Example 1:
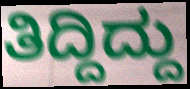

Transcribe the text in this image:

ತಿದ್ದಿದ್ದು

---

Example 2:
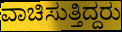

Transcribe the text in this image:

ವಾಚಿಸುತ್ತಿದ್ದರು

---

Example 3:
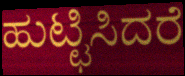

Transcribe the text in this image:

ಹುಟ್ಟಿಸಿದರೆ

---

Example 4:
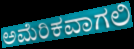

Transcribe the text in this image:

ಅಮೆರಿಕವಾಗಲಿ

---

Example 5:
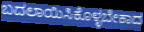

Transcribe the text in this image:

ಬದಲಾಯಿಸಿಕೊಳ್ಳಬೇಕಾದ